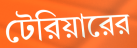
টেরিয়ারের